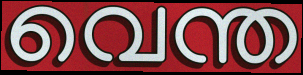
വെന്ത